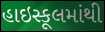
હાઇસ્કૂલમાંથી